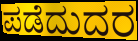
ಪಡೆದುದರ